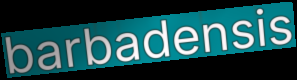
barbadensis